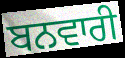
ਬਨਵਾਰੀ